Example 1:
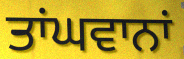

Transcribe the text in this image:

ਤਾਂਘਵਾਨਾਂ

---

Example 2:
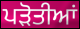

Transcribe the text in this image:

ਪੜੋਤੀਆਂ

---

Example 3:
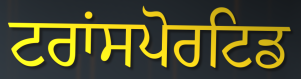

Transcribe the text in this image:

ਟਰਾਂਸਪੋਰਟਿਡ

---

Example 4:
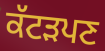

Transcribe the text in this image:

ਕੱਟੜਪਣ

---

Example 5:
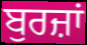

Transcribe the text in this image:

ਬੁਰਜ਼ਾਂ